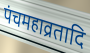
पंचमहाव्रतादि